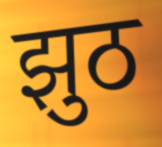
झुठ